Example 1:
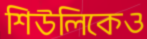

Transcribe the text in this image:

শিউলিকেও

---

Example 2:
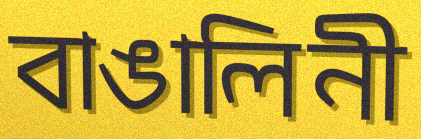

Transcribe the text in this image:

বাঙালিনী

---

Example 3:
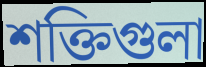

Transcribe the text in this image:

শক্তিগুলা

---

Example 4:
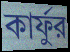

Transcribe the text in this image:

কার্ফুর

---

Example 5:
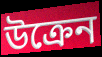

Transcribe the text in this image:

উক্রেন